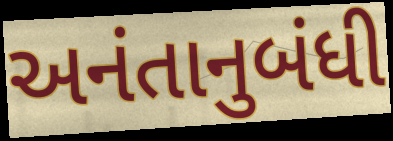
અનંતાનુબંધી